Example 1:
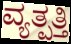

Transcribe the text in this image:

ವ್ಯತ್ಪತ್ತಿ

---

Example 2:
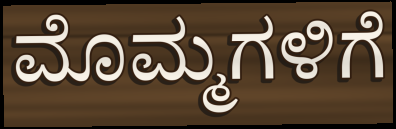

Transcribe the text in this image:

ಮೊಮ್ಮಗಳಿಗೆ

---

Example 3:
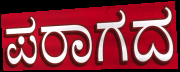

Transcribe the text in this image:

ಪರಾಗದ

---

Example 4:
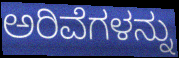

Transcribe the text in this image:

ಅರಿವೆಗಳನ್ನು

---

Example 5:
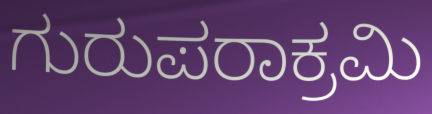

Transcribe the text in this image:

ಗುರುಪರಾಕ್ರಮಿ